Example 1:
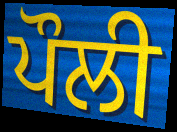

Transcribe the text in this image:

ਪੌਲੀ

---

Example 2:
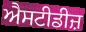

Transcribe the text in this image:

ਐਸਟੀਡੀਜ਼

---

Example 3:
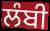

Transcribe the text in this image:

ਲੰਬੀ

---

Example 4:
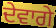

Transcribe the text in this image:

ਦੇਵਾਗੇ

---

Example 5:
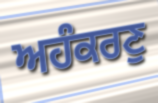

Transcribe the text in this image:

ਅਹੰਕਰਣੁ